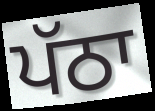
ਪੱਠਾ